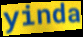
yinda